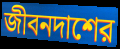
জীবনদাশের